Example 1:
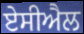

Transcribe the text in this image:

ਏਸੀਐਲ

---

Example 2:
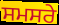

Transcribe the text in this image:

ਸਮਸਰੇ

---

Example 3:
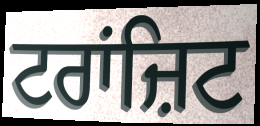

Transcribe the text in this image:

ਟਰਾਂਜ਼ਿਟ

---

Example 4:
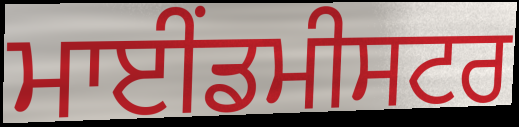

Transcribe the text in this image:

ਮਾਈਂਡਮੀਸਟਰ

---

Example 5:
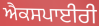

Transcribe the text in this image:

ਐਕਸਪਾਈਰੀ